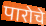
पारोचे